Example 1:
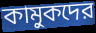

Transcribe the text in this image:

কামুকদের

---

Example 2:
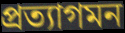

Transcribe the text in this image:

প্রত্যাগমন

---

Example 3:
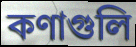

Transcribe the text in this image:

কণাগুলি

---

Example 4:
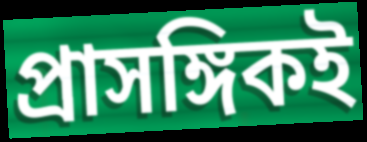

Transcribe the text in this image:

প্রাসঙ্গিকই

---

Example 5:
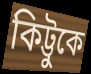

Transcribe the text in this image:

কিট্টুকে